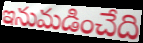
ఇనుమడించేది